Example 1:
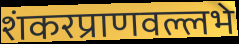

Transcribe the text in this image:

शंकरप्राणवल्लभे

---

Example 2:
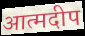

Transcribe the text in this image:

आत्मदीप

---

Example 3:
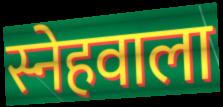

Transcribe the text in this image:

स्नेहवाला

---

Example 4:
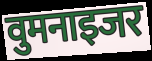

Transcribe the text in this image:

वुमनाइजर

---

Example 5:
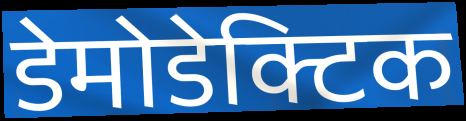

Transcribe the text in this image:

डेमोडेक्टिक